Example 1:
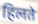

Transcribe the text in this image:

हिलते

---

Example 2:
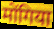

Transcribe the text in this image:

मोंगिया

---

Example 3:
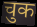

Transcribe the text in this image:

चुक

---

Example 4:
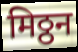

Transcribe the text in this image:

मिठ्ठन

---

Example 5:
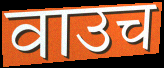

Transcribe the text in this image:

वाउच